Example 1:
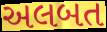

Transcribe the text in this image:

અલબત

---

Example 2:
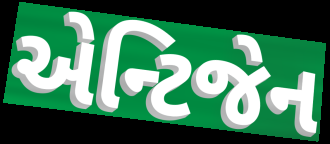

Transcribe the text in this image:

એન્ટિજેન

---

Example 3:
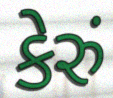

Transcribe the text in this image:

કેરું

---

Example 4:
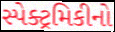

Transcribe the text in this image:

સ્પેક્ટ્રમિકીનો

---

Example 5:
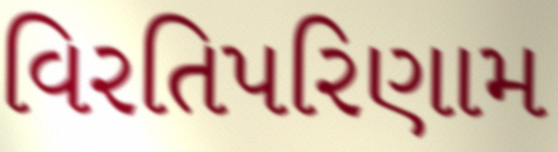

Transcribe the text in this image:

વિરતિપરિણામ